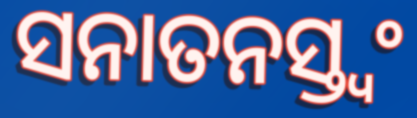
ସନାତନସ୍ତ୍ୱଂ